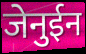
जेनुईन